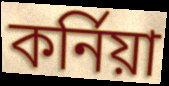
কৰ্নিয়া